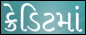
ક્રેડિટમાં